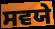
ਸਵਯੇ